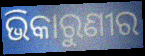
ଭିକାରୁଣୀର